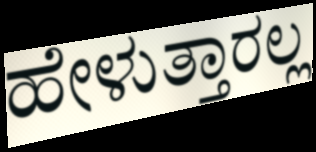
ಹೇಳುತ್ತಾರಲ್ಲ